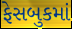
ફેસબુકમાં